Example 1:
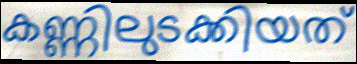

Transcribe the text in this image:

കണ്ണിലുടക്കിയത്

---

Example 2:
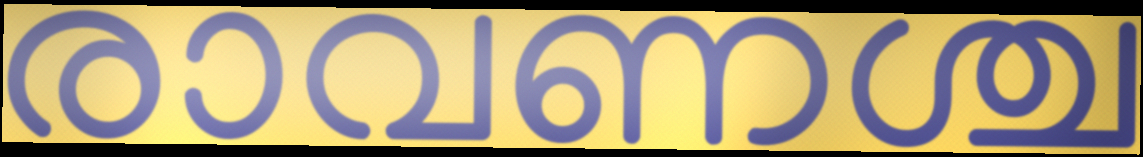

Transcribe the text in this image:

രാവണശ്ച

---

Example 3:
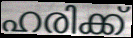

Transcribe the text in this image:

ഹരിക്ക്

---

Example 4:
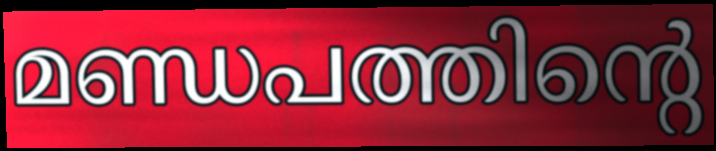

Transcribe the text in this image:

മണ്ഡപത്തിന്റെ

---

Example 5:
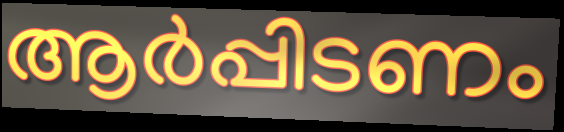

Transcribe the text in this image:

ആർപ്പിടണം